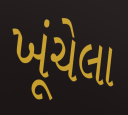
ખૂંચેલા